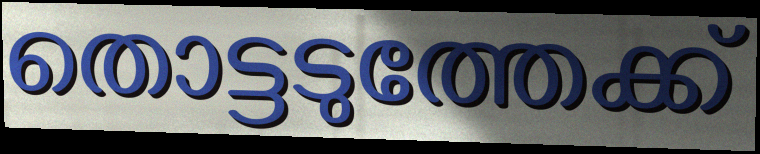
തൊട്ടടുത്തേക്ക്